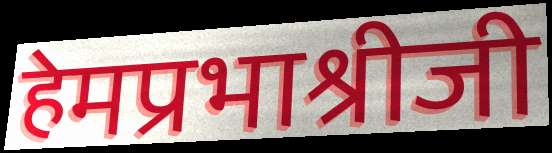
हेमप्रभाश्रीजी